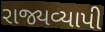
રાજ્યવ્યાપી